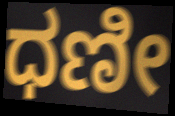
ಧಣೀ